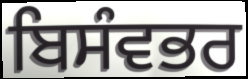
ਬਿਸੰਵਭਰ